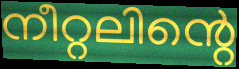
നീറ്റലിന്റെ